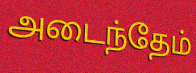
அடைந்தேம்